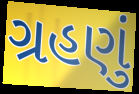
ગ્રહણું